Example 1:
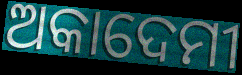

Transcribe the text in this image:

ଅକାଦେମୀ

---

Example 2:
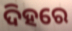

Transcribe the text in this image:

ଦିହରେ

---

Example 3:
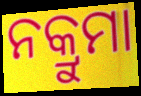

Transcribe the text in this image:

ନକ୍ରୁମା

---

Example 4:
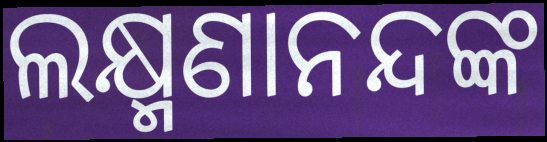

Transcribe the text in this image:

ଲକ୍ଷ୍ମଣାନନ୍ଦଙ୍କ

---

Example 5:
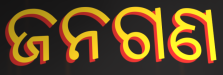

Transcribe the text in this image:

ଜନଗଣ